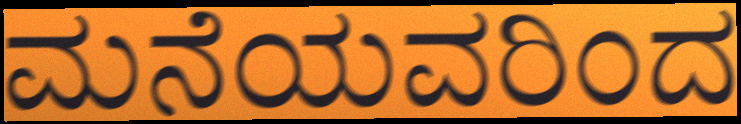
ಮನೆಯವರಿಂದ